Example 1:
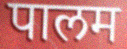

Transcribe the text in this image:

पालम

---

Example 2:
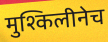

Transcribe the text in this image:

मुश्किलीनेच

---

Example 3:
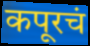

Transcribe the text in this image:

कपूरचं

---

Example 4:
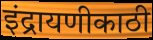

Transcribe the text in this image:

इंद्रायणीकाठी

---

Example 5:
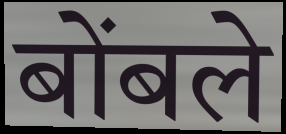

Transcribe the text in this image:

बोंबले